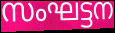
സംഘട്ടന